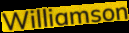
Williamson